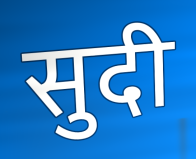
सुदी